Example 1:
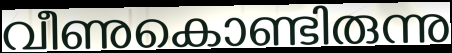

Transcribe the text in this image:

വീണുകൊണ്ടിരുന്നു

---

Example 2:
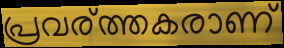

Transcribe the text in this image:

പ്രവര്ത്തകരാണ്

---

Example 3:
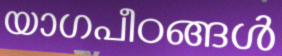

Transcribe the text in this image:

യാഗപീഠങ്ങൾ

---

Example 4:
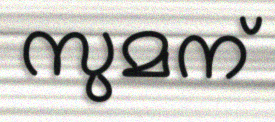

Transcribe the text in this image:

സുമന്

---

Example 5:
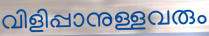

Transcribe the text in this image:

വിളിപ്പാനുള്ളവരും